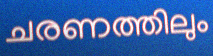
ചരണത്തിലും